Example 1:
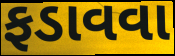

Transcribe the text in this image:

ફડાવવા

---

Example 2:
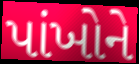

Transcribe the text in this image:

પાંખોને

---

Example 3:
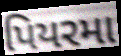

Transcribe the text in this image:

પિયરમા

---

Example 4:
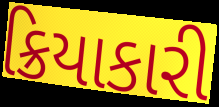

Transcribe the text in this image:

ક્રિયાકારી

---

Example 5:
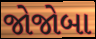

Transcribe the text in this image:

જોજોબા